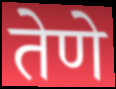
तेणे